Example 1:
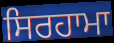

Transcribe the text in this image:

ਸਿਰਹਾਮਾ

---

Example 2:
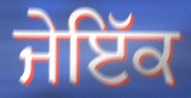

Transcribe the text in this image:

ਜੇਇੱਕ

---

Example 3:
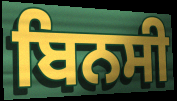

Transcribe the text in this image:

ਬਿਨਸੀ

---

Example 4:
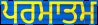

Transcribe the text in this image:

ਪਰਮਾਤਮ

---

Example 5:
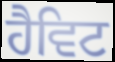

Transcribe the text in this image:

ਹੈਵਿਟ